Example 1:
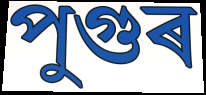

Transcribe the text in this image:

পুগুৰ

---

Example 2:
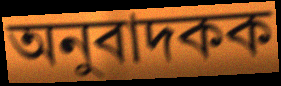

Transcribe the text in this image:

অনুবাদকক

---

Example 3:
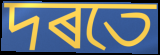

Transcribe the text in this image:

দৰতে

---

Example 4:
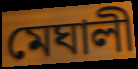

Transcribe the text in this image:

মেঘালী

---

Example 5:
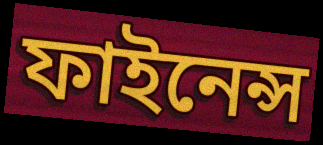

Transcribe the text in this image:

ফাইনেন্স